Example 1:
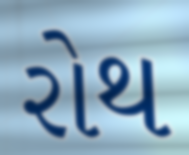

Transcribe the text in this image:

રોથ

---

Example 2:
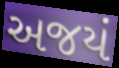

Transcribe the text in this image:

અજયં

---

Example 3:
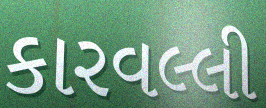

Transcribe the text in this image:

કારવલ્લી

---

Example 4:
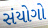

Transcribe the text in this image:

સંયોગો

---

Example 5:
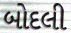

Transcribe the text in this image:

બોદલી